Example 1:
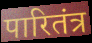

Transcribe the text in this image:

पारितंत्र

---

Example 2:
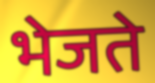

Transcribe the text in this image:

भेजते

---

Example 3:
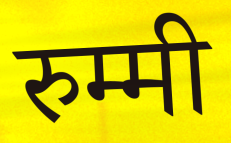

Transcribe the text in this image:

रुम्मी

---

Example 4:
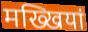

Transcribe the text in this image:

मख्खियां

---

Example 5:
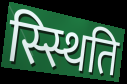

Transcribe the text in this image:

स्स्थिति